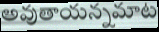
అవుతాయన్నమాట